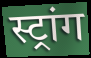
स्ट्रांग